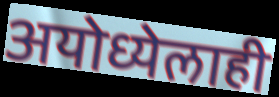
अयोध्येलाही